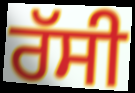
ਰੱਸੀ